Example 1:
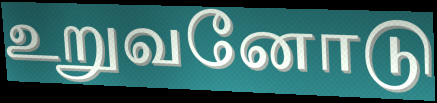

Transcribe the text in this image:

உறுவனோடு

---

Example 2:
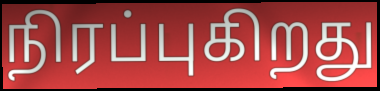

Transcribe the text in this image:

நிரப்புகிறது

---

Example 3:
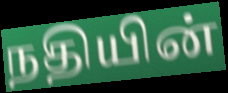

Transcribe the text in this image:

நதியின்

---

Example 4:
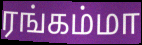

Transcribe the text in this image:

ரங்கம்மா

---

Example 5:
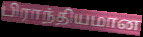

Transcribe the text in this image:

பிராந்தியமான